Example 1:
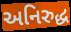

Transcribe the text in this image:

અનિરુદ્ધ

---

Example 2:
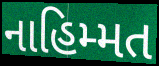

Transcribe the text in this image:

નાહિમ્મત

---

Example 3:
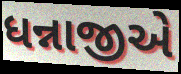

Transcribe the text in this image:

ધન્નાજીએ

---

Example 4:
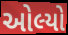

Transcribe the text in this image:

ઓલ્યો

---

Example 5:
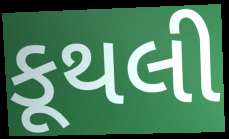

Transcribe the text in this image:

કૂથલી